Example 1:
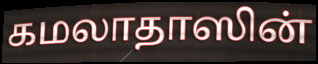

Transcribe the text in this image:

கமலாதாஸின்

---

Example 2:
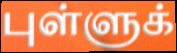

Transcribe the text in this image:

புள்ளுக்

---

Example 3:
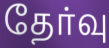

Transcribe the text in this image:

தேர்வு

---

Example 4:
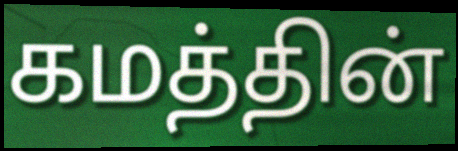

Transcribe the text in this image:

கமத்தின்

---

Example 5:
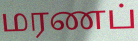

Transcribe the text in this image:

மரணப்